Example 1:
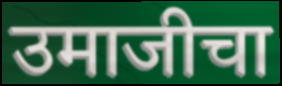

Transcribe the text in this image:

उमाजीचा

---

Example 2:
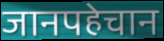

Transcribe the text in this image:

जानपहेचान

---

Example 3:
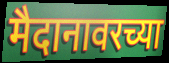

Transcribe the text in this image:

मैदानावरच्या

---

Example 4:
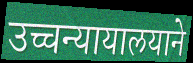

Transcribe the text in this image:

उच्चन्यायालयाने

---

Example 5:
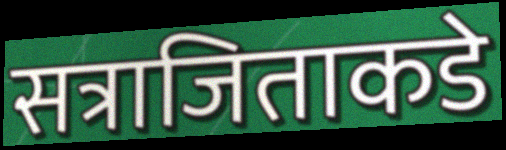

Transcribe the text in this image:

सत्राजिताकडे